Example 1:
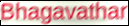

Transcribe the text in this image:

Bhagavathar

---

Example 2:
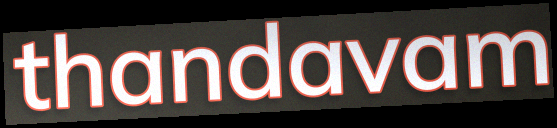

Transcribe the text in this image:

thandavam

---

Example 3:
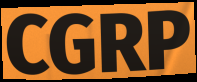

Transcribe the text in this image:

CGRP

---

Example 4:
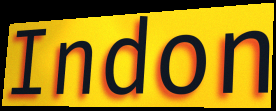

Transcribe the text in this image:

Indon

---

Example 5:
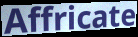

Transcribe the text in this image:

Affricate